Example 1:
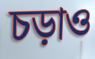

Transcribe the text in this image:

চড়াও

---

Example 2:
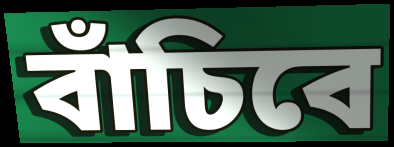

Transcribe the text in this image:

বাঁচিবে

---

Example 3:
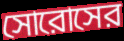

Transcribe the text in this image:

সোরোসের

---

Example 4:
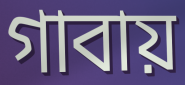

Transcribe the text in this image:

গাবায়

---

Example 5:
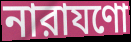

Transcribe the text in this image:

নারাযণো